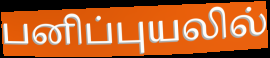
பனிப்புயலில்